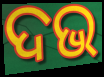
ଦଭ